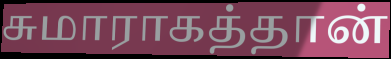
சுமாராகத்தான்